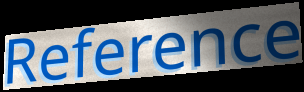
Reference